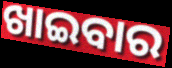
ଖାଇବାର